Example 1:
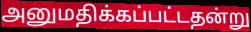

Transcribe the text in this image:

அனுமதிக்கப்பட்டதன்று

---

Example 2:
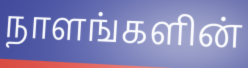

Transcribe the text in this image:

நாளங்களின்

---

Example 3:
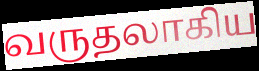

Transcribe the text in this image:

வருதலாகிய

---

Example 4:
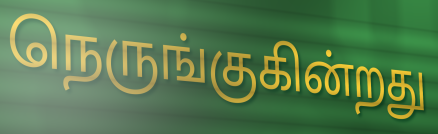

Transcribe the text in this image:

நெருங்குகின்றது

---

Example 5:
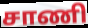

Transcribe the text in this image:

சாணி